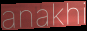
anakhi